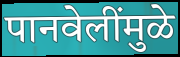
पानवेलींमुळे